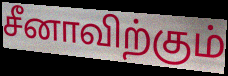
சீனாவிற்கும்